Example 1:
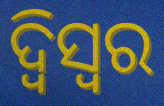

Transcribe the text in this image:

ଦ୍ଵିସ୍ଵର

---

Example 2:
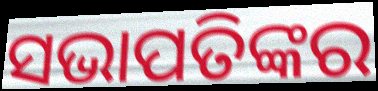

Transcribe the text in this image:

ସଭାପତିଙ୍କର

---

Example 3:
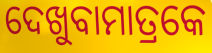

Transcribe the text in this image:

ଦେଖୁବାମାତ୍ରକେ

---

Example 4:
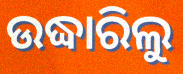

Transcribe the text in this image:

ଉଦ୍ଧାରିଲୁ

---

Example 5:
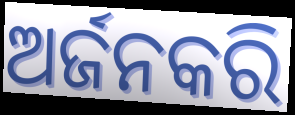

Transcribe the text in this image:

ଅର୍ଜନକରି